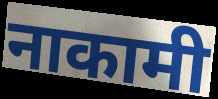
नाकामी